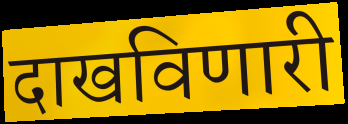
दाखविणारी